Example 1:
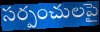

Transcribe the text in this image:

సర్పంచులపై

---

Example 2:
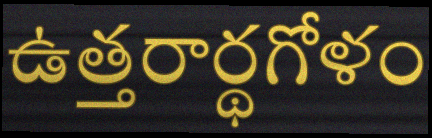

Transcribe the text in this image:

ఉత్తరార్థగోళం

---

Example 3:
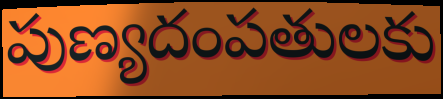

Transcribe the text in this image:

పుణ్యదంపతులకు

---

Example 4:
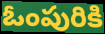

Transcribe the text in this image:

ఓంపురికి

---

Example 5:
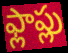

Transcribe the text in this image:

ఫ్లాప్లు